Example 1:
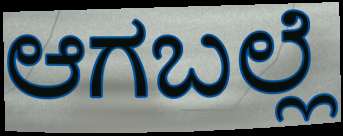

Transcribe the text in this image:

ಆಗಬಲ್ಲೆ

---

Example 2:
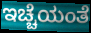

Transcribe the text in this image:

ಇಚ್ಚೆಯಂತೆ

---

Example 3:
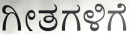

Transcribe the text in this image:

ಗೀತಗಳಿಗೆ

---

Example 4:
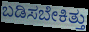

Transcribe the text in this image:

ಬಡಿಸಬೇಕಿತ್ತು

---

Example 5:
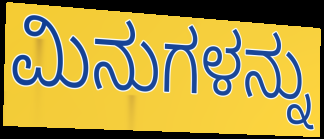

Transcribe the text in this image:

ಮಿನುಗಳನ್ನು